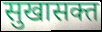
सुखासक्त